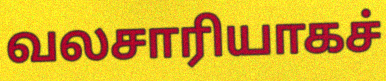
வலசாரியாகச்